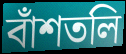
বাঁশতলি